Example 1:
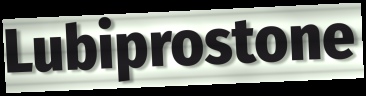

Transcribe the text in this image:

Lubiprostone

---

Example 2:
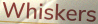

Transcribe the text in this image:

Whiskers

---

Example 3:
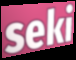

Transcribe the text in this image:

seki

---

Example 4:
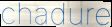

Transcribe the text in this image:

chadure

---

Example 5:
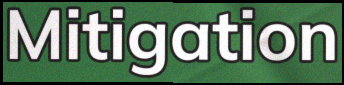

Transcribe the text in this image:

Mitigation